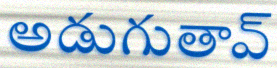
అడుగుతావ్